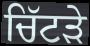
ਚਿੱਟੜੇ